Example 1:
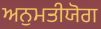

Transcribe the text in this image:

ਅਨੁਮਤੀਯੋਗ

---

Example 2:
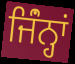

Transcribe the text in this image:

ਜਿੰਂਨ੍ਹਾਂ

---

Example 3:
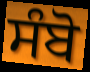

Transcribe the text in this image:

ਸੰਬੋ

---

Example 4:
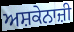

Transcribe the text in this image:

ਅਸ਼ਕੇਨਾਜ਼ੀ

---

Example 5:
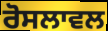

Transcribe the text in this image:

ਰੋਸਲਾਵਲ